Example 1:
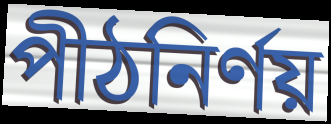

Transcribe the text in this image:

পীঠনির্ণয়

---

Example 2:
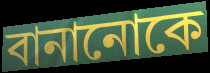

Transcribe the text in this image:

বানানোকে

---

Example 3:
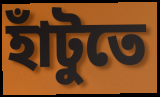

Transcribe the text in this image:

হাঁটুতে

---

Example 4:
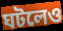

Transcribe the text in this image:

ঘটলেও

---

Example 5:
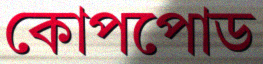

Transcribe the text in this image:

কোপপোড